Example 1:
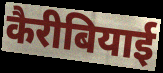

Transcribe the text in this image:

कैरीबियाई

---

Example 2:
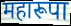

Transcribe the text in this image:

महारूपा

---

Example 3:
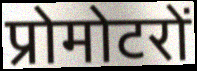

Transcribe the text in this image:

प्रोमोटरों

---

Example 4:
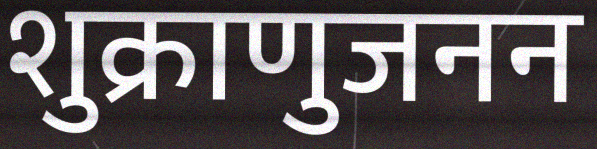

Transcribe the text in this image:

शुक्राणुजनन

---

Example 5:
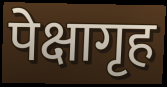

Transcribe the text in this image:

पेक्षागृह